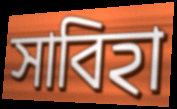
সাবিহা